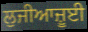
ਲੁਜੀਆਜ਼ੂਈ